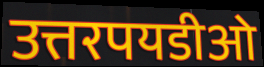
उत्तरपयडीओ